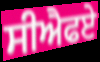
ਸੀਐਫਏ